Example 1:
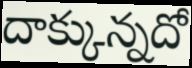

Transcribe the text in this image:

దాక్కున్నదో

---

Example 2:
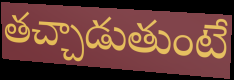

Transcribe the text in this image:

తచ్చాడుతుంటే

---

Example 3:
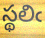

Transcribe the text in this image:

స్థలిఁ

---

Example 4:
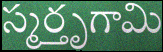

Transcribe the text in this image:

స్మర్తృగామి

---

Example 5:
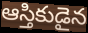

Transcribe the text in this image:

ఆస్తికుడైన